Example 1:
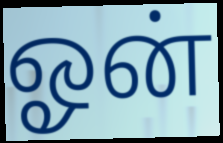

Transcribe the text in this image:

ஓன்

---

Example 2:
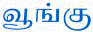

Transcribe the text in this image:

வூங்கு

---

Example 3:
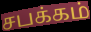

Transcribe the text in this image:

சபக்கம்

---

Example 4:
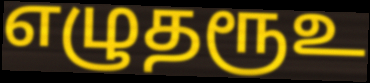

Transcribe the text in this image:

எழுதரூஉ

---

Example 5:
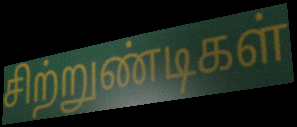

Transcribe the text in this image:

சிற்றுண்டிகள்